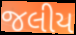
જલીય